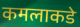
कमलाकडे